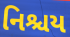
નિશ્ચય